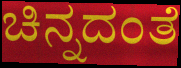
ಚಿನ್ನದಂತೆ